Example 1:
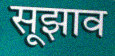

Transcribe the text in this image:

सूझाव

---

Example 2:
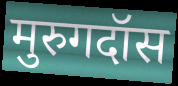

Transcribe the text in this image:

मुरुगदॉस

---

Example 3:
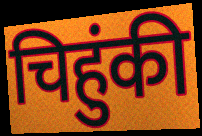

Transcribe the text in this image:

चिहुंकी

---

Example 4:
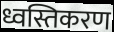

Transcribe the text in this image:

ध्वस्तिकरण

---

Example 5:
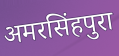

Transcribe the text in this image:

अमरसिंहपुरा